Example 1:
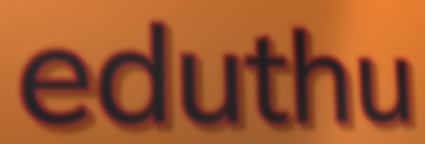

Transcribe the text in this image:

eduthu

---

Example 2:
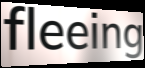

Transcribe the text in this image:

fleeing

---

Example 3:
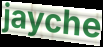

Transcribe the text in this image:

jayche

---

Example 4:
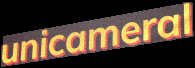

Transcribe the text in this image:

unicameral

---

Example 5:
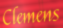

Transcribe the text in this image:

Clemens